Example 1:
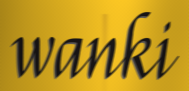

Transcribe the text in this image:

wanki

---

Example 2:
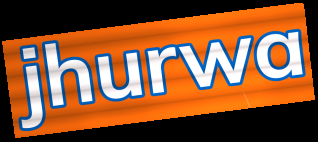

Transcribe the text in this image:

jhurwa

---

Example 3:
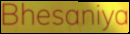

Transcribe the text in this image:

Bhesaniya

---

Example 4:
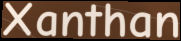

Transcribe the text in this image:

Xanthan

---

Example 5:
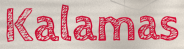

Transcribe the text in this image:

Kalamas